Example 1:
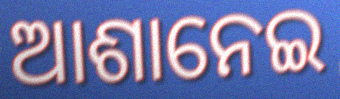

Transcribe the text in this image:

ଆଶାନେଇ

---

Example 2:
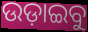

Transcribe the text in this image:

ଉଡ଼ାଇବୁ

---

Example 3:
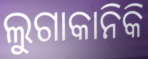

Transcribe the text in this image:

ଲୁଗାକାନିକି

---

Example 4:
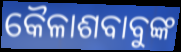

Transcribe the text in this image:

କୈଳାଶବାବୁଙ୍କ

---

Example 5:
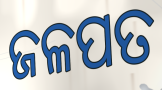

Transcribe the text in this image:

ଜଳପତ